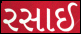
રસાઈ